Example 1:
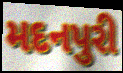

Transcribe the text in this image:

મદનપુરી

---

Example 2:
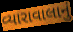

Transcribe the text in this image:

વ્યારાવાલાનું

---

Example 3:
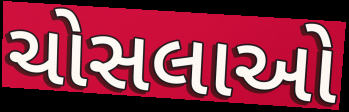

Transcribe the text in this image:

ચોસલાઓ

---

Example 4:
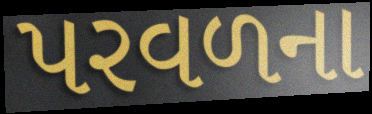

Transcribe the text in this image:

પરવળના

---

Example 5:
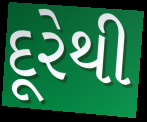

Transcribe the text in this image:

દૂરેથી